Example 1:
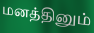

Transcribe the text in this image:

மனத்தினும்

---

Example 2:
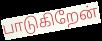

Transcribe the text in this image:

பாடுகிறேன்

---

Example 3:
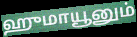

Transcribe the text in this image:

ஹுமாயூனும்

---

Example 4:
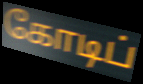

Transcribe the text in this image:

கோடிப்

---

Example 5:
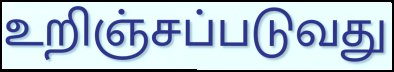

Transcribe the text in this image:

உறிஞ்சப்படுவது